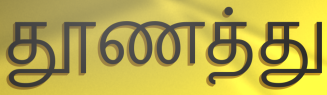
தூணத்து